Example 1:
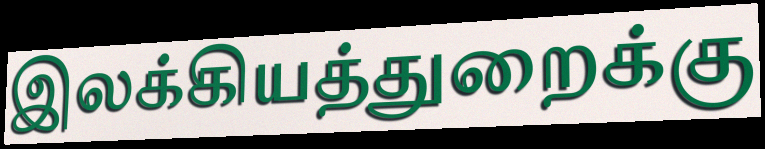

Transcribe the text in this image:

இலக்கியத்துறைக்கு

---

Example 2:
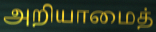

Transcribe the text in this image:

அறியாமைத்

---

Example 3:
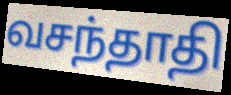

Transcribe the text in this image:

வசந்தாதி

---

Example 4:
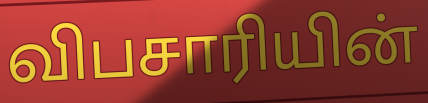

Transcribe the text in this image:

விபசாரியின்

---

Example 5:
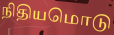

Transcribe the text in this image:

நிதியமொடு